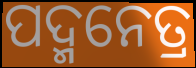
ପଦ୍ମନେତ୍ର